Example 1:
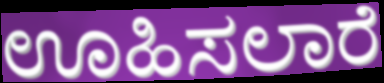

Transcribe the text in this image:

ಊಹಿಸಲಾರೆ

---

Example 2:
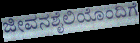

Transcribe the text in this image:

ಜೀವನಶೈಲಿಯೊಂದಿಗೆ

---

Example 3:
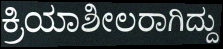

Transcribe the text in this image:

ಕ್ರಿಯಾಶೀಲರಾಗಿದ್ದು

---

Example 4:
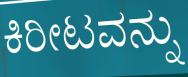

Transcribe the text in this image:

ಕಿರೀಟವನ್ನು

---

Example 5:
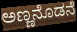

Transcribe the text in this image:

ಅಣ್ಣನೊಡನೆ